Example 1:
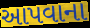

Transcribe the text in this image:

આપવાના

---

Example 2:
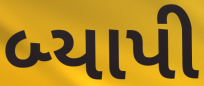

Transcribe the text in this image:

બ્યાપી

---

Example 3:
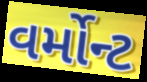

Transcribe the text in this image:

વર્મોન્ટ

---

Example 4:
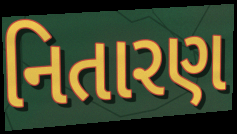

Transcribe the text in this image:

નિતારણ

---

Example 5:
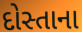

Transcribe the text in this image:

દોસ્તાના